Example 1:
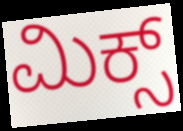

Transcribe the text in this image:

ಮಿಕ್ಸ್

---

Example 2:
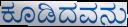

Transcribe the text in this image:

ಕೂಡಿದವನು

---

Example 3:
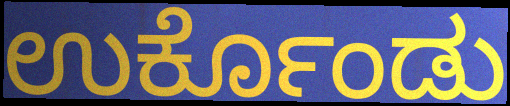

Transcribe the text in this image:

ಉರ್ಕೊಂಡು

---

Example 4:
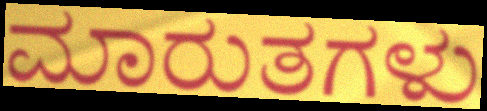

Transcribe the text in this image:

ಮಾರುತಗಳು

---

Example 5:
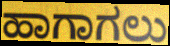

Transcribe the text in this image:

ಹಾಗಾಗಲು